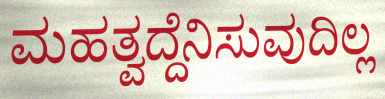
ಮಹತ್ವದ್ದೆನಿಸುವುದಿಲ್ಲ